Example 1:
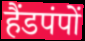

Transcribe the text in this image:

हैंडपंपों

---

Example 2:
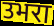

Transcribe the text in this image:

उभरा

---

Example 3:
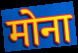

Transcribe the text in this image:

मोना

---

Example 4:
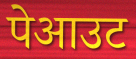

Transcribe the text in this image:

पेआउट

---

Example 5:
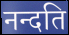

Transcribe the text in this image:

नन्दति